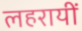
लहरायीं